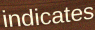
indicates